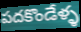
పదకొండేళ్ళ